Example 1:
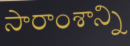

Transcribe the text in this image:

సారాంశాన్ని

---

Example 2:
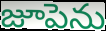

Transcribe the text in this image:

జూపెను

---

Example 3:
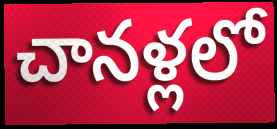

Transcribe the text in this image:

చానళ్లలో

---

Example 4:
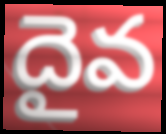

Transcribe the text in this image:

దైవ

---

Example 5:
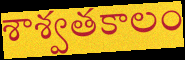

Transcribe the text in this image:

శాశ్వతకాలం